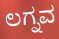
ಲಗ್ನವ